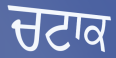
ਚਟਾਕ